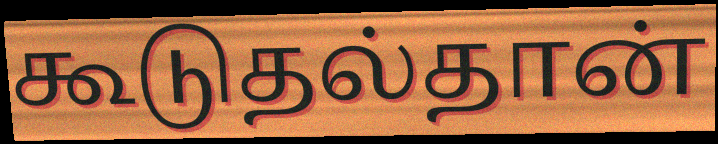
கூடுதல்தான்